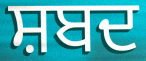
ਸ਼ਬਦ